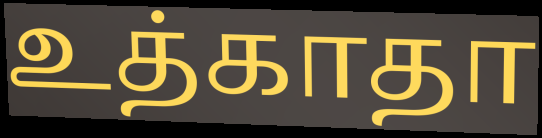
உத்காதா